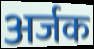
अर्जक